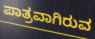
ಪಾತ್ರವಾಗಿರುವ